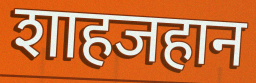
शाहजहान